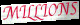
MILLIONS